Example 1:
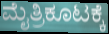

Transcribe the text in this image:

ಮೈತ್ರಿಕೂಟಕ್ಕೆ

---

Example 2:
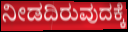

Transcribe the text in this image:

ನೀಡದಿರುವುದಕ್ಕೆ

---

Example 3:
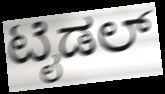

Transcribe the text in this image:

ಟೈಡಲ್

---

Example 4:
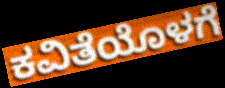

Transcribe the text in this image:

ಕವಿತೆಯೊಳಗೆ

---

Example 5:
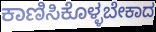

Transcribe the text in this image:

ಕಾಣಿಸಿಕೊಳ್ಳಬೇಕಾದ